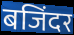
बजिंदर